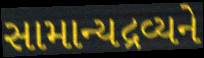
સામાન્યદ્રવ્યને